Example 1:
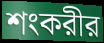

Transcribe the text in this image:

শংকরীর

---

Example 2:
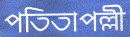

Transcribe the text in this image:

পতিতাপল্লী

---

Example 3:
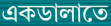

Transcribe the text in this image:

একডালাতে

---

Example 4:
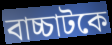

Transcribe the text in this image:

বাচ্চাটকে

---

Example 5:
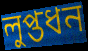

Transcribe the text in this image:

লুপ্তধন